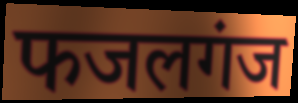
फजलगंज